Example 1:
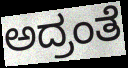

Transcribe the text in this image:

ಅದ್ರಂತೆ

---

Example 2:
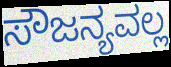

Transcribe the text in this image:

ಸೌಜನ್ಯವಲ್ಲ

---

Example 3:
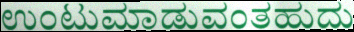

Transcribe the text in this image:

ಉಂಟುಮಾಡುವಂತಹುದು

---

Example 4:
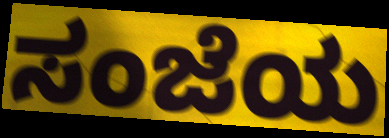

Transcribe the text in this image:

ಸಂಜೆಯ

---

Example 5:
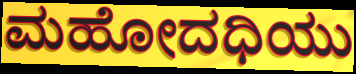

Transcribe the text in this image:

ಮಹೋದಧಿಯು